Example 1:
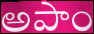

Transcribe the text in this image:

అపాం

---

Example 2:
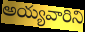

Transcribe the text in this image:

అయ్యవారిని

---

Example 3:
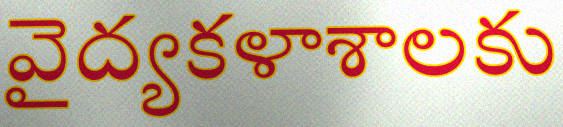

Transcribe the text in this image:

వైద్యకళాశాలకు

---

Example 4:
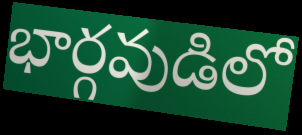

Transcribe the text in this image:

భార్గవుడిలో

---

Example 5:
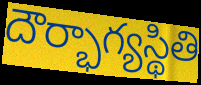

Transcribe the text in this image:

దౌర్భాగ్యస్థితి